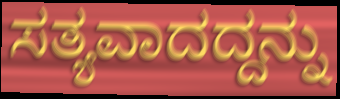
ಸತ್ಯವಾದದ್ದನ್ನು